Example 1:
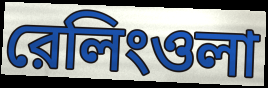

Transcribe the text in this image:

রেলিংওলা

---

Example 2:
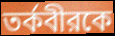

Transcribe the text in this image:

তর্কবীরকে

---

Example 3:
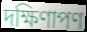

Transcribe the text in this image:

দক্ষিণাপণ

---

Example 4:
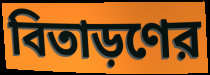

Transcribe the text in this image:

বিতাড়ণের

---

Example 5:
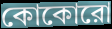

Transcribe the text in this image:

কোকোরো